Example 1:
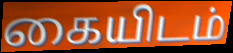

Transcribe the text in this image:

கையிடம்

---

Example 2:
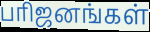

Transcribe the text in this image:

பரிஜனங்கள்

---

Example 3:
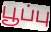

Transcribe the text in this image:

பூப்பு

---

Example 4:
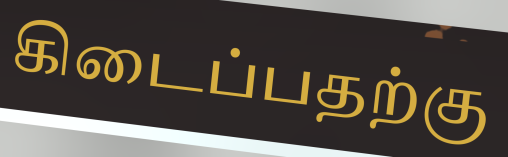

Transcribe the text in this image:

கிடைப்பதற்கு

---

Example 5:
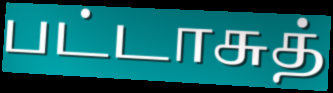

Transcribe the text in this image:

பட்டாசுத்